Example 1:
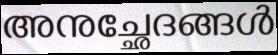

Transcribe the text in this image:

അനുച്ഛേദങ്ങൾ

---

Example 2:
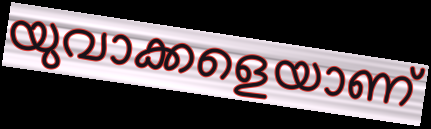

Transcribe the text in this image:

യുവാക്കളെയാണ്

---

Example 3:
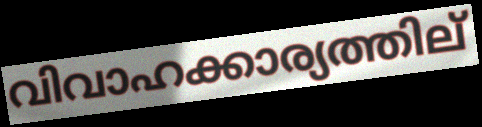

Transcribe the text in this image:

വിവാഹക്കാര്യത്തില്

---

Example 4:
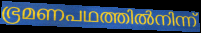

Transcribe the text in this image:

ഭ്രമണപഥത്തിൽനിന്ന്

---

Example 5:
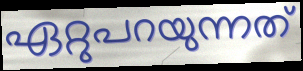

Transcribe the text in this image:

ഏറ്റുപറയുന്നത്